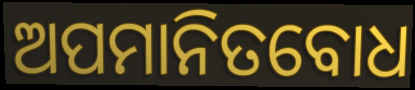
ଅପମାନିତବୋଧ